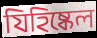
যিহিষ্কেল